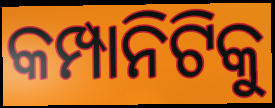
କମ୍ପାନିଟିକୁ